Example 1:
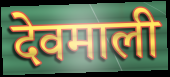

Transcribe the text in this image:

देवमाली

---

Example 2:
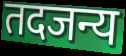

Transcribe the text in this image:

तदजन्य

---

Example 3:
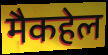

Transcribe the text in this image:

मैकहेल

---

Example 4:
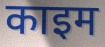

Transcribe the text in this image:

काइम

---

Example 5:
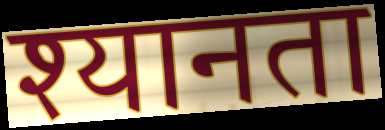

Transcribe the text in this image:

श्यानता